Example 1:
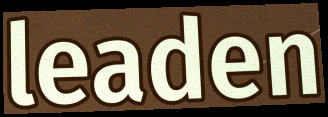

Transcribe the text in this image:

leaden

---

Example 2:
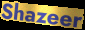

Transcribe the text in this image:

Shazeer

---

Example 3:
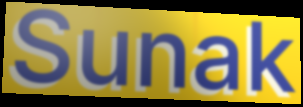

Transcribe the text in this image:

Sunak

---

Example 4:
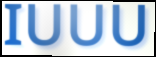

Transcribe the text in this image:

IUUU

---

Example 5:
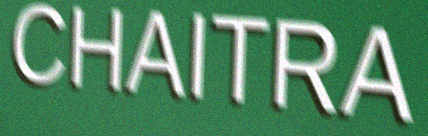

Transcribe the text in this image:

CHAITRA